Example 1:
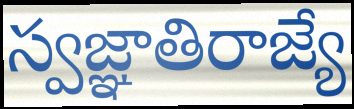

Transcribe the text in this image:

స్వజ్ఞాతిరాజ్యే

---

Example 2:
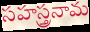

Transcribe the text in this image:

సహస్త్రనామ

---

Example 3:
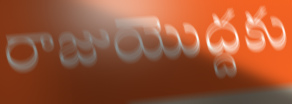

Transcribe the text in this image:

రాజుయొద్దకు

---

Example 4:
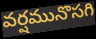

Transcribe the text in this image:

వర్షమునొసగి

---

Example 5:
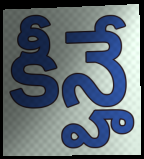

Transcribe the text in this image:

కీన్హే